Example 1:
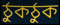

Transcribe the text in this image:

ঠুকঠুক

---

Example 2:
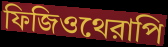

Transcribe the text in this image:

ফিজিওথেরাপি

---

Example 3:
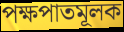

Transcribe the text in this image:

পক্ষপাতমূলক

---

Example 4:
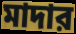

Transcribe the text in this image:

মাদার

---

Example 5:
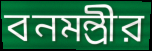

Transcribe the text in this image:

বনমন্ত্রীর